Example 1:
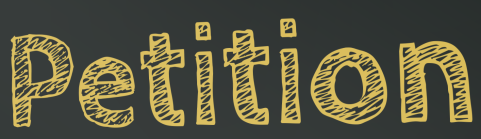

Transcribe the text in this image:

Petition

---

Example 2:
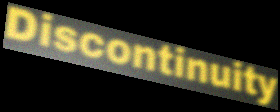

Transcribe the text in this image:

Discontinuity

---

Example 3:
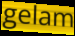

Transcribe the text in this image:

gelam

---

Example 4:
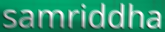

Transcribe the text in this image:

samriddha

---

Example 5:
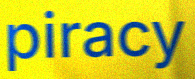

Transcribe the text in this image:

piracy